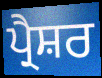
ਪ੍ਰੈਸ਼ਰ